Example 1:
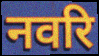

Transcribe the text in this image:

नवरि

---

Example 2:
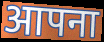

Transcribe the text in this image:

आपना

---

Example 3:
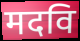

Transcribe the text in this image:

मदवि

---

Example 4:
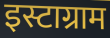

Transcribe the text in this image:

इस्टाग्राम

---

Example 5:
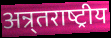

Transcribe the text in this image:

अन्र्तराष्ट्रीय